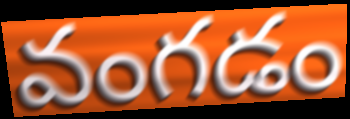
వంగడం